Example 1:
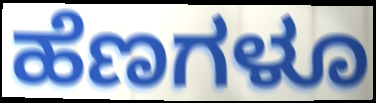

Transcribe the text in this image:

ಹೆಣಗಳೂ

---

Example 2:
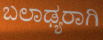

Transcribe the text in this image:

ಬಲಾಢ್ಯರಾಗಿ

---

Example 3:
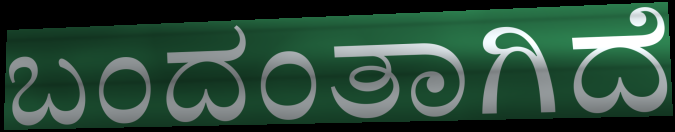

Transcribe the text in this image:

ಬಂದಂತಾಗಿದೆ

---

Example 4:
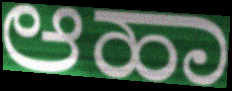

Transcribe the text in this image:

ಆಹಾ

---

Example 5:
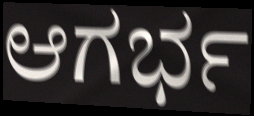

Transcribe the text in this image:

ಆಗರ್ಭ